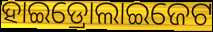
ହାଇଡ୍ରୋଲାଇଜେଟ